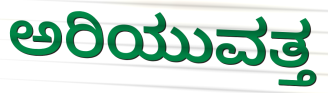
ಅರಿಯುವತ್ತ